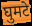
घुमटे